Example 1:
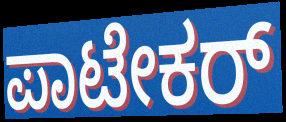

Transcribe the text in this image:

ಪಾಟೇಕರ್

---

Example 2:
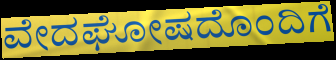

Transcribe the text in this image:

ವೇದಘೋಷದೊಂದಿಗೆ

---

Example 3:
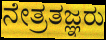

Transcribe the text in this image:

ನೇತ್ರತಜ್ಞರು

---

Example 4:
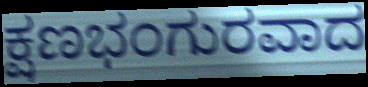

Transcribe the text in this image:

ಕ್ಷಣಭಂಗುರವಾದ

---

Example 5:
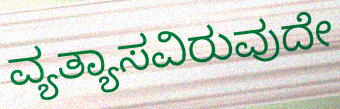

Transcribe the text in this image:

ವ್ಯತ್ಯಾಸವಿರುವುದೇ